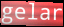
gelar